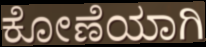
ಕೋಣೆಯಾಗಿ